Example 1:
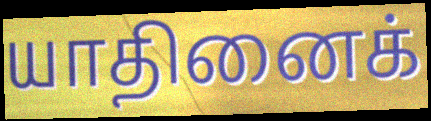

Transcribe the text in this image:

யாதினைக்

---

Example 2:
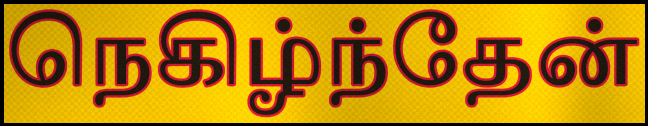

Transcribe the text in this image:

நெகிழ்ந்தேன்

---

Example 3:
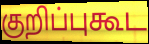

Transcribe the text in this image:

குறிப்புகூட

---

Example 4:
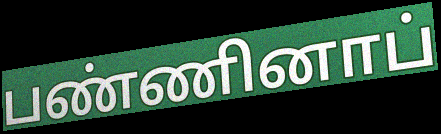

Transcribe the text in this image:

பண்ணினாப்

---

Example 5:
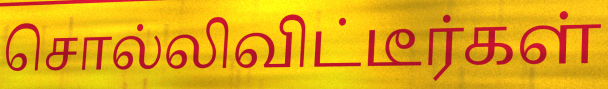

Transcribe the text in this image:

சொல்லிவிட்டீர்கள்